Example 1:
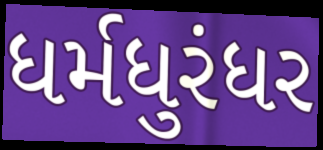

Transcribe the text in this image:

ધર્મધુરંધર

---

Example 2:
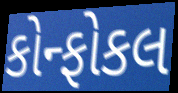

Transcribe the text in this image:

કોન્ફોકલ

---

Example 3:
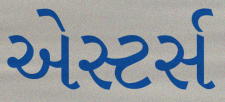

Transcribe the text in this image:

એસ્ટર્સ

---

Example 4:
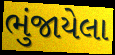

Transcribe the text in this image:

ભુંજાયેલા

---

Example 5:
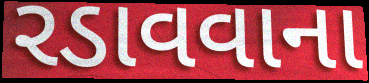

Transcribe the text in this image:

રડાવવાના